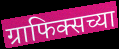
ग्राफिक्सच्या